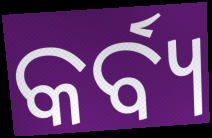
କର୍ବ୍ୟ